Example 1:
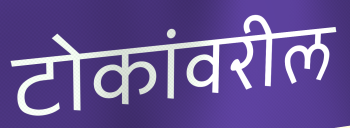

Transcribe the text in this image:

टोकांवरील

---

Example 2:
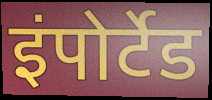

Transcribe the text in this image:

इंपोर्टेड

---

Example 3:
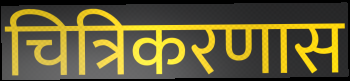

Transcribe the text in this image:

चित्रिकरणास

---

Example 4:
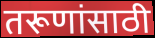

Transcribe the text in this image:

तरूणांसाठी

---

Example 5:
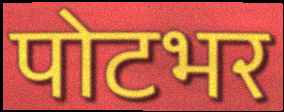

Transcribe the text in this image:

पोटभर